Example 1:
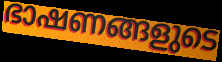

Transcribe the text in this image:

ഭാഷണങ്ങളുടെ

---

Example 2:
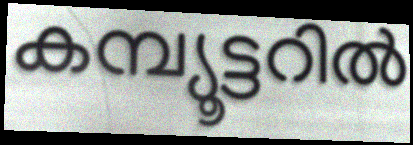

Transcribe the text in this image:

കമ്പ്യൂട്ടറിൽ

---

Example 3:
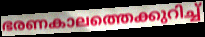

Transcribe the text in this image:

ഭരണകാലത്തെക്കുറിച്ച്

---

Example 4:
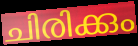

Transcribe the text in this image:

ചിരിക്കും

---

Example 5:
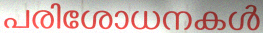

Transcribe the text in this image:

പരിശോധനകൾ